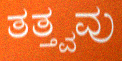
ತತ್ತ್ವವು